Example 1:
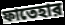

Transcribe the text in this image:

ফাতেহার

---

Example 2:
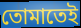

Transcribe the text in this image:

তোমাতেই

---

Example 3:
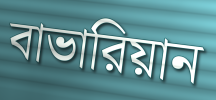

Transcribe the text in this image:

বাভারিয়ান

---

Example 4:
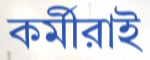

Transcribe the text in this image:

কর্মীরাই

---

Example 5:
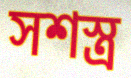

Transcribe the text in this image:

সশস্ত্র